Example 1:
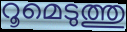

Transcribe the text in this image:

റൂമെടുത്തു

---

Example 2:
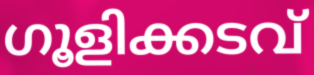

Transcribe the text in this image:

ഗൂളിക്കടവ്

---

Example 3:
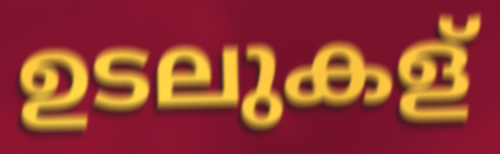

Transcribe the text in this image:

ഉടലുകള്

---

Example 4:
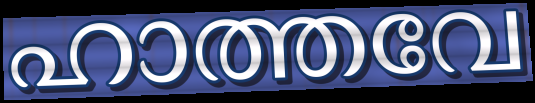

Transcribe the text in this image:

ഹാത്തവേ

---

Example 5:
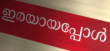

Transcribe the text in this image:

ഇരയായപ്പോൾ